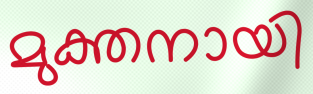
മുക്തനായി